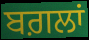
ਬਗ਼ਲਾਂ